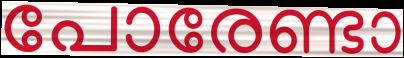
പോരേണ്ടാ